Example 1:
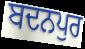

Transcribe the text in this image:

ਬਦਨਪੁਰ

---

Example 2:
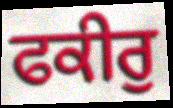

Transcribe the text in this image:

ਫਕੀਰੁ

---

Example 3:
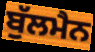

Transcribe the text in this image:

ਬੁੱਲਮੈਨ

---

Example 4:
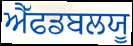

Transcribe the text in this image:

ਐੱਫਡਬਲਯੂ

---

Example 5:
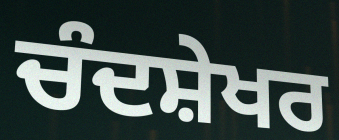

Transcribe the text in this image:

ਚੰਦਸ਼ੇਖਰ